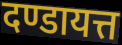
दण्डायत्त